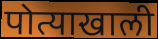
पोत्याखाली